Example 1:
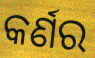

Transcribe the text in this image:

କର୍ଣର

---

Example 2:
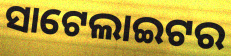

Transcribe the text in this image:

ସାଟେଲାଇଟର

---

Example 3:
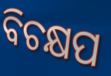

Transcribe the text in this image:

ବିଚକ୍ଷପ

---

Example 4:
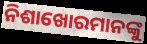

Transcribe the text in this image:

ନିଶାଖୋରମାନଙ୍କୁ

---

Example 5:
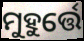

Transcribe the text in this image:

ମୁହୁର୍ତ୍ତେ